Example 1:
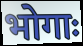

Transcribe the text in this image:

भोगाः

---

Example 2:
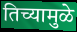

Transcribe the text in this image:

तिच्यामुळे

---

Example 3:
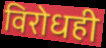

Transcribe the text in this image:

विरोधही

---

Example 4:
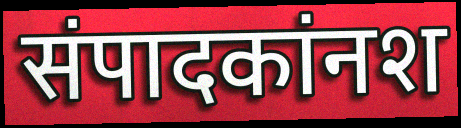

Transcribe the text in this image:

संपादकांनश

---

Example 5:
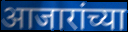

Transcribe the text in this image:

आजारांच्या